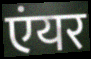
एंयर